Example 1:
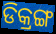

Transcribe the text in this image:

ଡିକ୍ରଙ୍ଗ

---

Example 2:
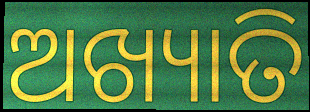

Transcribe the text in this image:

ଅଖ୍ୟାତି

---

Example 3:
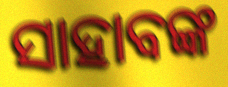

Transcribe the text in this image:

ସାହାବଙ୍କ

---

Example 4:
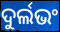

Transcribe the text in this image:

ଦୁର୍ଲଭଂ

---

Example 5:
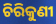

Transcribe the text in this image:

ଚିରିକୁଣୀ